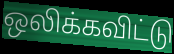
ஒலிக்கவிட்டு